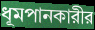
ধূমপানকারীর